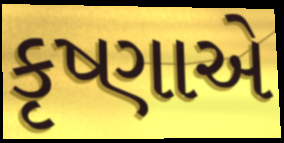
કૃષ્ણાએ